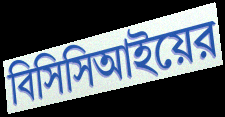
বিসিসিআইয়ের